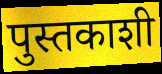
पुस्तकाशी